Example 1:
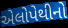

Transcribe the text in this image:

એલોપેથીનો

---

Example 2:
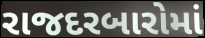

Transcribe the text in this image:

રાજદરબારોમાં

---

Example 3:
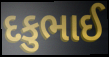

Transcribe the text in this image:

દકુભાઈ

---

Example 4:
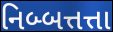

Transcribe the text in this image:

નિબ્બત્તત્તા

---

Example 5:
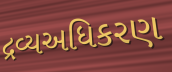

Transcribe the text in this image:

દ્રવ્યઅધિકરણ